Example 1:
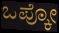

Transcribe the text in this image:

ಒಪ್ಕೋ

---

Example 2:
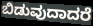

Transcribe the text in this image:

ಬಿಡುವುದಾದರೆ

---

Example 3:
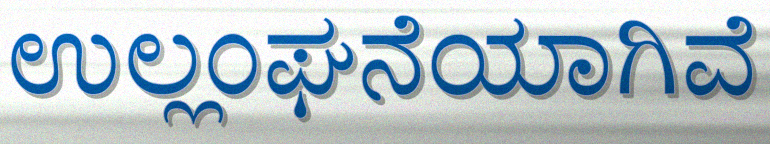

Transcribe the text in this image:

ಉಲ್ಲಂಘನೆಯಾಗಿವೆ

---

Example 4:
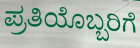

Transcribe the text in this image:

ಪ್ರತಿಯೊಬ್ಬರಿಗೆ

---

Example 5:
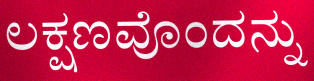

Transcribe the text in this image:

ಲಕ್ಷಣವೊಂದನ್ನು